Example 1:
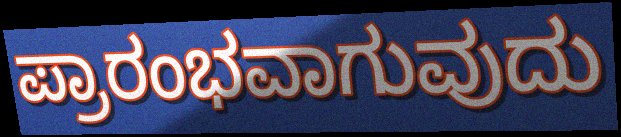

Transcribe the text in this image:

ಪ್ರಾರಂಭವಾಗುವುದು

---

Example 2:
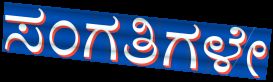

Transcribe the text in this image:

ಸಂಗತಿಗಳೇ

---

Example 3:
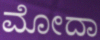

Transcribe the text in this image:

ಮೋದಾ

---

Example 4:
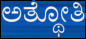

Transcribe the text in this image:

ಅತ್ಥೋತಿ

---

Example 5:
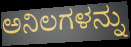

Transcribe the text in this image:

ಅನಿಲಗಳನ್ನು